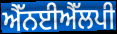
ਐੱਨਈਐੱਲਪੀ